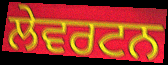
ਲੇਵਰਟਨ